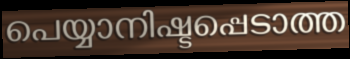
പെയ്യാനിഷ്ടപ്പെടാത്ത